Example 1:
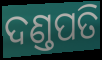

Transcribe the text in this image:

ଦଣ୍ଡପତି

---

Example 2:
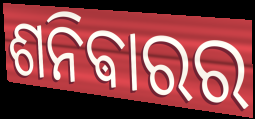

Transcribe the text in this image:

ଶନିଵାରର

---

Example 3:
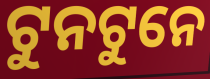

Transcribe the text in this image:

ଟୁନଟୁନେ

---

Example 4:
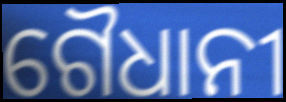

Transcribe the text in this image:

ଗୈଧାନୀ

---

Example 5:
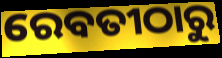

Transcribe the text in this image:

ରେବତୀଠାରୁ